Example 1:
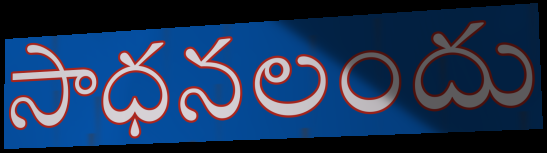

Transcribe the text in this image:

సాధనలందు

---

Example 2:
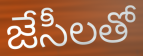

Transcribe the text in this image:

జేసీలతో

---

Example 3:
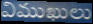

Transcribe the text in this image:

విముఖులు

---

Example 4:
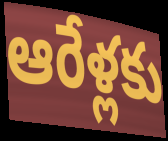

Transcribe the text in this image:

ఆరేళ్లకు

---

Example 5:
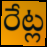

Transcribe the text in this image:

రేట్ల